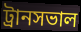
ট্রানসভাল